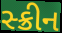
સ્ક્રીન